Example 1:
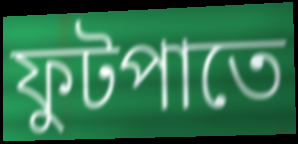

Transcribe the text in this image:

ফুটপাতে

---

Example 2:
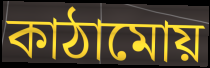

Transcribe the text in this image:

কাঠামোয়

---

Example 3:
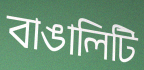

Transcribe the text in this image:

বাঙালিটি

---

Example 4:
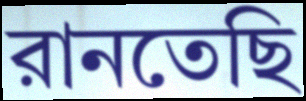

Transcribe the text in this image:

রানতেছি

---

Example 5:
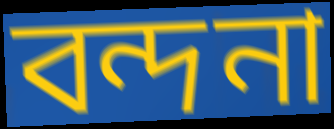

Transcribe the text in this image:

বন্দনা